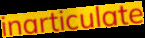
inarticulate